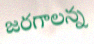
జరగాలన్న